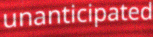
unanticipated